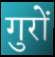
गुरों